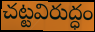
చట్టవిరుద్ధం